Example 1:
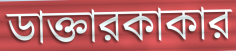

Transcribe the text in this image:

ডাক্তারকাকার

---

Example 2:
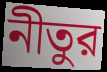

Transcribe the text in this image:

নীতুর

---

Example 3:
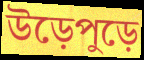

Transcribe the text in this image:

উড়েপুড়ে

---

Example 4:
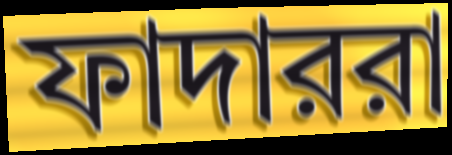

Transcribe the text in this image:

ফাদাররা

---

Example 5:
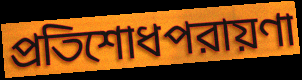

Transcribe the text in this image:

প্রতিশোধপরায়ণা